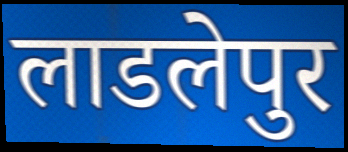
लाडलेपुर